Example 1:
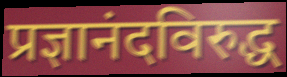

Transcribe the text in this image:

प्रज्ञानंदविरुद्ध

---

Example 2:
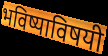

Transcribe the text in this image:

भविष्याविषयी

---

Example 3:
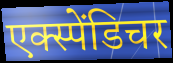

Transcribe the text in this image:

एक्स्पेंडिचर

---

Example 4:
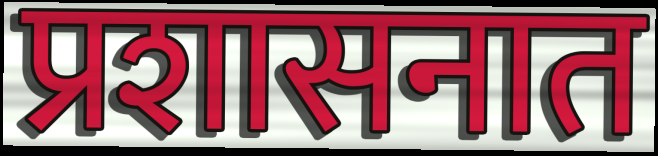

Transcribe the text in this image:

प्रशासनात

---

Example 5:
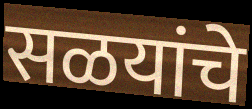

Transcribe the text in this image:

सळयांचे